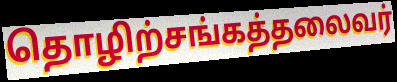
தொழிற்சங்கத்தலைவர்